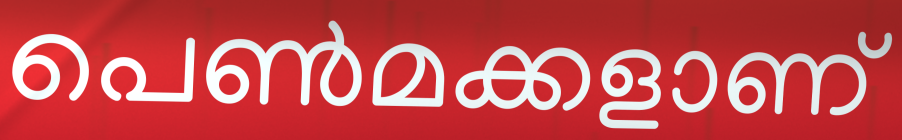
പെൺമക്കളാണ്